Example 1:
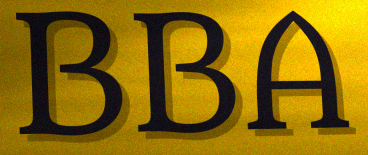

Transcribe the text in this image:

BBA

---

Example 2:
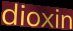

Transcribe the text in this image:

dioxin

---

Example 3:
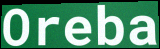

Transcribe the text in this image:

Oreba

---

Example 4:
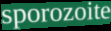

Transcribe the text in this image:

sporozoite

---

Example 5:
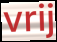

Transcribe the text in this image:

vrij